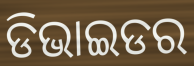
ଡିଭାଇଡର